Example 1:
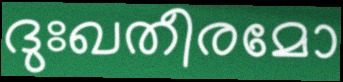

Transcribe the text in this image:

ദുഃഖതീരമോ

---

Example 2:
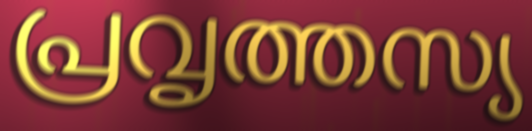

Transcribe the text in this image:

പ്രവൃത്തസ്യ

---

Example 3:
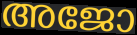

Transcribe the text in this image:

അജോ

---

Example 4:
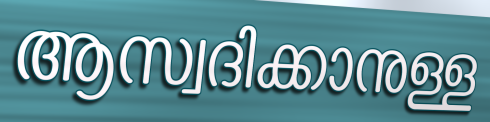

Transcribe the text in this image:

ആസ്വദിക്കാനുള്ള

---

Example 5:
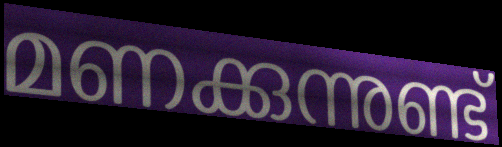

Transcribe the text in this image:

മണക്കുന്നുണ്ട്